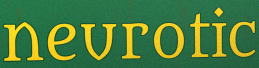
neurotic